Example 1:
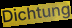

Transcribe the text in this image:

Dichtung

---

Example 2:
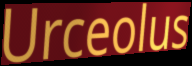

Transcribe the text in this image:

Urceolus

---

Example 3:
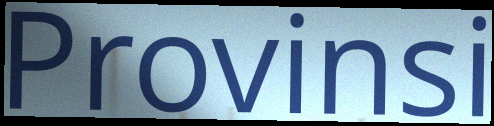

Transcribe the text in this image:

Provinsi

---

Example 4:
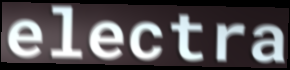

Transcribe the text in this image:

electra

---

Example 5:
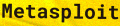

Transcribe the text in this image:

Metasploit